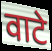
वाटे